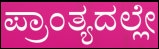
ಪ್ರಾಂತ್ಯದಲ್ಲೇ